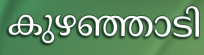
കുഴഞ്ഞാടി